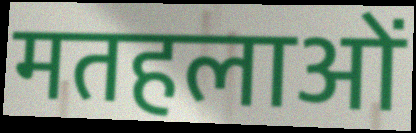
मतहलाओं